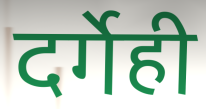
दर्गेही